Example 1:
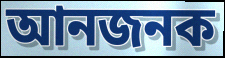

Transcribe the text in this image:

আনজনক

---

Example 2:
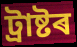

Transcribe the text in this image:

ট্ৰাষ্টৰ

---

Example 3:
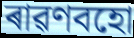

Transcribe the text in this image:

ৰাৱণবহো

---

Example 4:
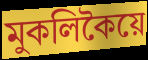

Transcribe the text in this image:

মুকলিকৈয়ে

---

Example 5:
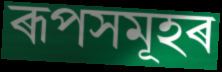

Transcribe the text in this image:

ৰূপসমূহৰ